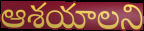
ఆశయాలని